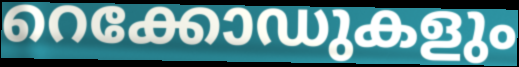
റെക്കോഡുകളും